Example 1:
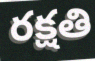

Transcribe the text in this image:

రక్షతి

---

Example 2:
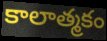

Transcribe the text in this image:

కాలాత్మకం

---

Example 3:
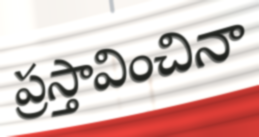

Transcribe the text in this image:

ప్రస్తావించినా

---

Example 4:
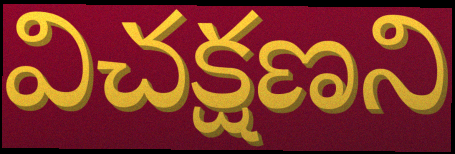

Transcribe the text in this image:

విచక్షణని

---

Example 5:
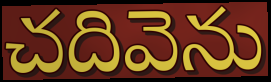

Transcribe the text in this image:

చదివెను